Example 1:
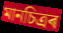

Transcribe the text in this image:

মানচিত্ৰৰ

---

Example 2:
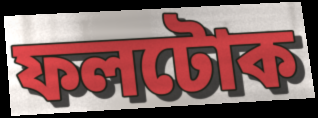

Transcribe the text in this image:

ফলটোক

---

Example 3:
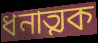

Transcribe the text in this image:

ধনাত্মক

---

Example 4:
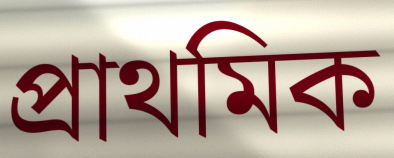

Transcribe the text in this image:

প্ৰাথমিক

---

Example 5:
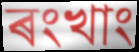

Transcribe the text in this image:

ৰংখাং